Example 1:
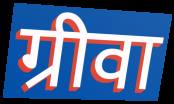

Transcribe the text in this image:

ग्रीवा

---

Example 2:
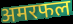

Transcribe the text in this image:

अमरफल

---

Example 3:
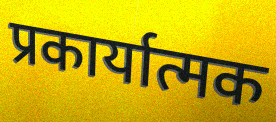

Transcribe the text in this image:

प्रकार्यात्मक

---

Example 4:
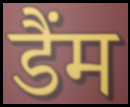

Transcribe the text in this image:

डैंम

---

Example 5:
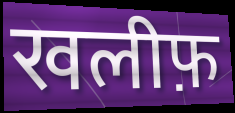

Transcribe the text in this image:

खलीफ़